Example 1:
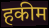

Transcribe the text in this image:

हकीम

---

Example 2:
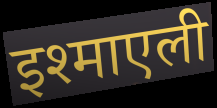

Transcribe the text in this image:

इश्माएली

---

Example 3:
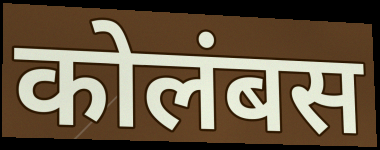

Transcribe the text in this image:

कोलंबस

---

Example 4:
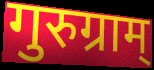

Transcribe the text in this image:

गुरुग्राम्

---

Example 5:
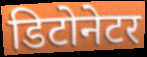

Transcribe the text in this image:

डिटोनेटर